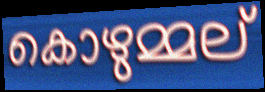
കൊഴുമ്മല്